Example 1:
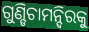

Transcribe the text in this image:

ଗୁଣ୍ଡିଚାମନ୍ଦିରକୁ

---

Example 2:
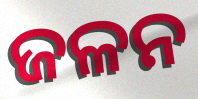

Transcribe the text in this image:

ଜଳନ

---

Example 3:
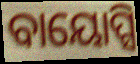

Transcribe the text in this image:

ବାୟୋପ୍ସି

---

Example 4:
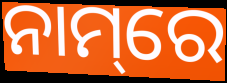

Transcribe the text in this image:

ନାମ୍‌ରେ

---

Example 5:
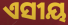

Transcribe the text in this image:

ଏସୀୟ